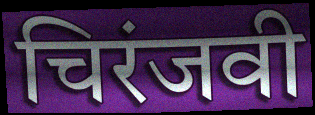
चिरंजवी